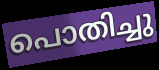
പൊതിച്ചു